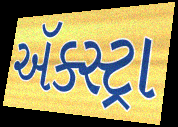
ઍક્સ્ટ્રા